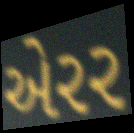
એરર